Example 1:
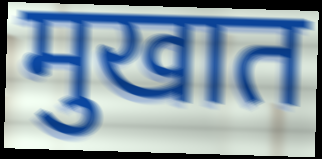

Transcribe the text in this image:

मुखात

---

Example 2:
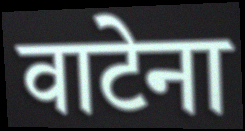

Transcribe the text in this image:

वाटेना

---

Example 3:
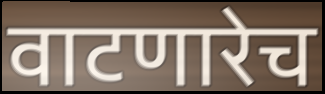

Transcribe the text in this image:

वाटणारेच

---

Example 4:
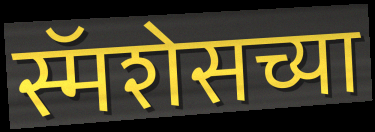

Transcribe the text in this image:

स्मॅशेसच्या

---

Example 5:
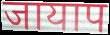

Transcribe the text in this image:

जायाप